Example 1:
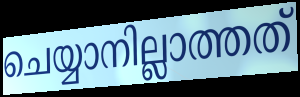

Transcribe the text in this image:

ചെയ്യാനില്ലാത്തത്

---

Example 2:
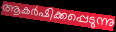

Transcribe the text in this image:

ആകർഷിക്കപ്പെടുന്നു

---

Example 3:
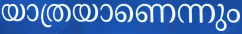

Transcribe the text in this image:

യാത്രയാണെന്നും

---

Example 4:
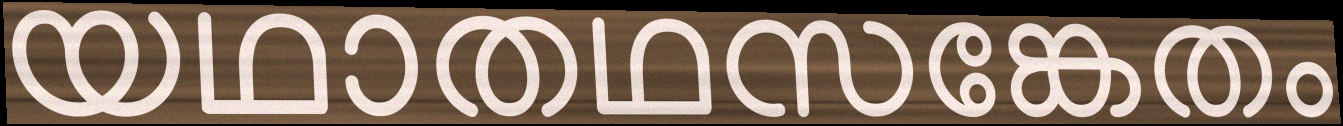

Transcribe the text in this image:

യഥാതഥസങ്കേതം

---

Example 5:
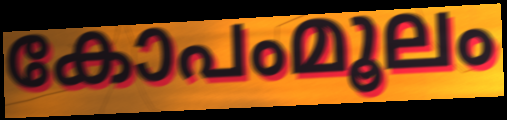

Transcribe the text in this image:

കോപംമൂലം